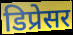
डिप्रेसर